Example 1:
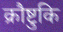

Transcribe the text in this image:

क्रौष्टुकि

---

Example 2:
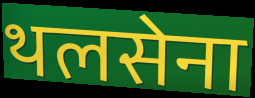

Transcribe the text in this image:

थलसेना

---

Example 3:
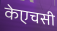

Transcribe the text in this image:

केएचसी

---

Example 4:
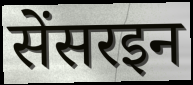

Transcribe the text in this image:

सेंसरइन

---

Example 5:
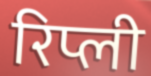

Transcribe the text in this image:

रिप्ली